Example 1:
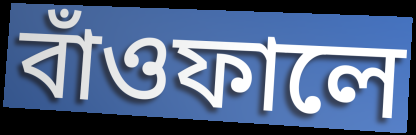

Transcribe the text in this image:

বাঁওফালে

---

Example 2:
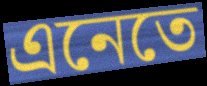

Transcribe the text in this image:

এনেতে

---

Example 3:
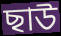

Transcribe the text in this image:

ছাউ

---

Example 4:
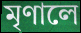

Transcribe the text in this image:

মৃণালে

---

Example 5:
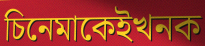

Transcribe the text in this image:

চিনেমাকেইখনক